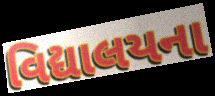
વિદ્યાલયના